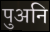
पुअनि